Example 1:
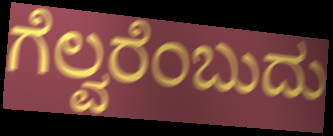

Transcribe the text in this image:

ಗೆಲ್ವರೆಂಬುದು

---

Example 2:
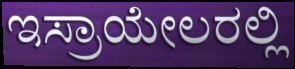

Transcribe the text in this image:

ಇಸ್ರಾಯೇಲರಲ್ಲಿ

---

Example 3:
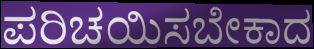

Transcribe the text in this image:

ಪರಿಚಯಿಸಬೇಕಾದ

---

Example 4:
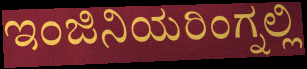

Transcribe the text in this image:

ಇಂಜಿನಿಯರಿಂಗ್ನಲ್ಲಿ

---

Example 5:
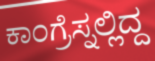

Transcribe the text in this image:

ಕಾಂಗ್ರೆಸ್ನಲ್ಲಿದ್ದ